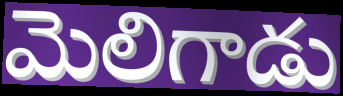
మెలిగాడు